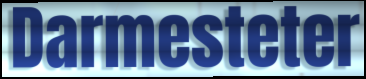
Darmesteter